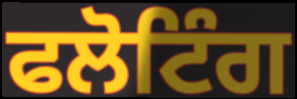
ਫਲੋਟਿੰਗ